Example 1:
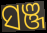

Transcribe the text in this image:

ସଞ୍ଜ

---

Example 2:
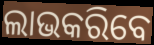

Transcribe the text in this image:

ଲାଭକରିବେ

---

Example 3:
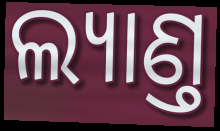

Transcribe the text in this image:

ଲ୍ୟାଣ୍ତ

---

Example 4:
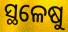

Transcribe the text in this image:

ସ୍ଥଳେଷୁ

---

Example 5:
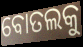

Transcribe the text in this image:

ବୋତଲକୁ